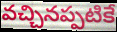
వచ్చినప్పటికే